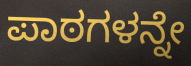
ಪಾಠಗಳನ್ನೇ